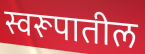
स्वरूपातील